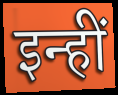
इन्हीं